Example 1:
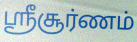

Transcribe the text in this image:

ஸ்ரீசூர்ணம்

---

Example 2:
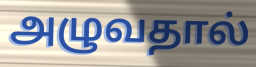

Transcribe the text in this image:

அழுவதால்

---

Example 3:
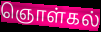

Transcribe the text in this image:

ஞொள்கல்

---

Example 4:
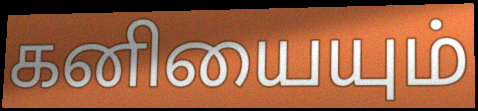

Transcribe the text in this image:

கனியையும்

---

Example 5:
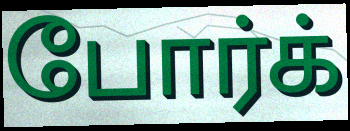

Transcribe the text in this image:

போர்க்